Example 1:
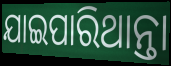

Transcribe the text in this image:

ଯାଇପାରିଥାନ୍ତା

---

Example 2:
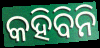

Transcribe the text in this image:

କହିବିନି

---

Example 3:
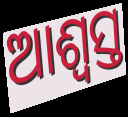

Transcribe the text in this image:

ଆଶ୍ବସ୍ତ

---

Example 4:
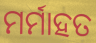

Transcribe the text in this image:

ମର୍ମାହତ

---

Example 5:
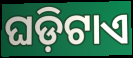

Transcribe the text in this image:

ଘଡ଼ିଟାଏ